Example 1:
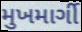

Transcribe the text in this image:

મુખમાર્ગી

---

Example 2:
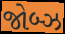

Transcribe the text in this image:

જોબ્ઝ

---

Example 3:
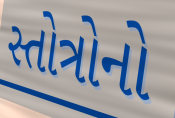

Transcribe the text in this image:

સ્તોત્રોનો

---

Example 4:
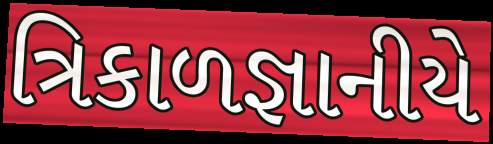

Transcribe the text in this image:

ત્રિકાળજ્ઞાનીયે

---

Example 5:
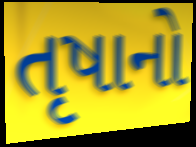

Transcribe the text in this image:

તૃષાનો